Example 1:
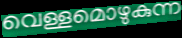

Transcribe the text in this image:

വെള്ളമൊഴുകുന്ന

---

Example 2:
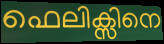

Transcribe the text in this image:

ഫെലിക്സിനെ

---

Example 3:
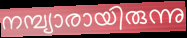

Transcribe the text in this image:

നമ്പ്യാരായിരുന്നു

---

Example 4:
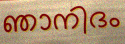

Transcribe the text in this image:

ഞാനിദം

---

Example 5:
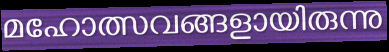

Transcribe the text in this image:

മഹോത്സവങ്ങളായിരുന്നു